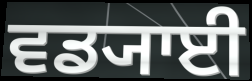
ਵਡ੍ਯਾਈ